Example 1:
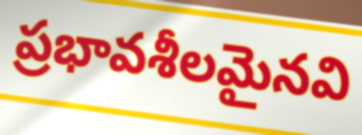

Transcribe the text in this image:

ప్రభావశీలమైనవి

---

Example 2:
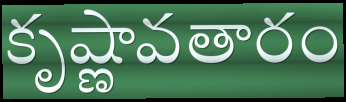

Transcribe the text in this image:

కృష్ణావతారం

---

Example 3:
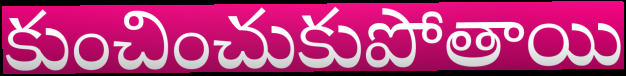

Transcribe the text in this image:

కుంచించుకుపోతాయి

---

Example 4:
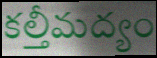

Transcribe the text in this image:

కల్తీమద్యం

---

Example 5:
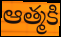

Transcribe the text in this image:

ఆత్మకి